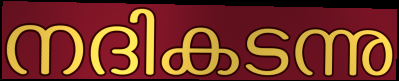
നദികടന്നു